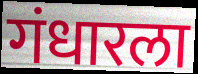
गंधारला